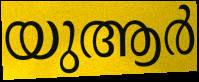
യുആർ